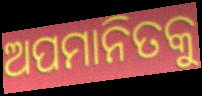
ଅପମାନିତକୁ